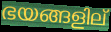
ഭയങ്ങളില്